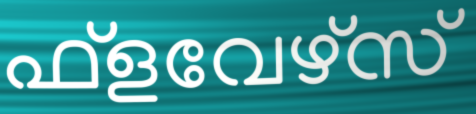
ഫ്ളവേഴ്സ്